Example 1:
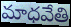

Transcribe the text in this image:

మాధవేతి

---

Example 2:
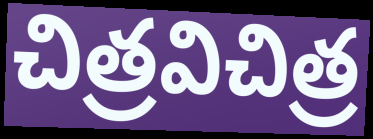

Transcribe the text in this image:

చిత్రవిచిత్ర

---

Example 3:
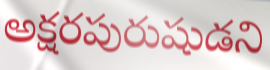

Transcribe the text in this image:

అక్షరపురుషుడని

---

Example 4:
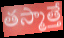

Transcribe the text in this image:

తస్మాత్తే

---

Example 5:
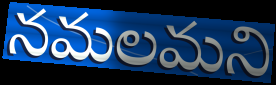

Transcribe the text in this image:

నమలమని